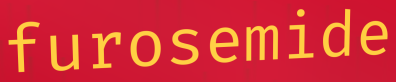
furosemide